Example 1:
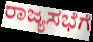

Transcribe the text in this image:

ರಾಜ್ಯಸಭೆಗೆ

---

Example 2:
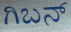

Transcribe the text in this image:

ಗಿಬನ್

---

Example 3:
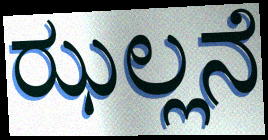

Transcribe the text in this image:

ಝಲ್ಲನೆ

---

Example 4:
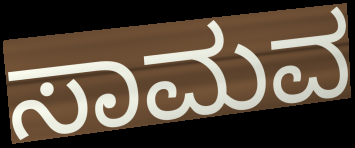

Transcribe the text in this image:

ಸಾಮವ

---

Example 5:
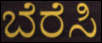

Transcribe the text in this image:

ಬೆರೆಸಿ